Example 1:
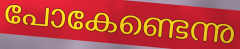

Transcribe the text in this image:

പോകേണ്ടെന്നു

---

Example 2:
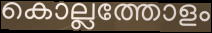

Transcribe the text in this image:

കൊല്ലത്തോളം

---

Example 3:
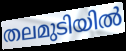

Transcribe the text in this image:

തലമുടിയിൽ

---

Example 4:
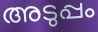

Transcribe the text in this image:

അടുപ്പം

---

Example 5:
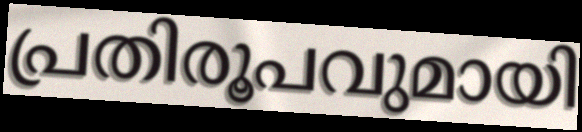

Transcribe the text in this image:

പ്രതിരൂപവുമായി